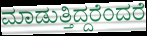
ಮಾಡುತ್ತಿದ್ದರೆಂದರೆ